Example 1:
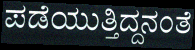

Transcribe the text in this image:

ಪಡೆಯುತ್ತಿದ್ದನಂತೆ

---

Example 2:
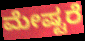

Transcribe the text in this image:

ಮೇಷ್ಟರೆ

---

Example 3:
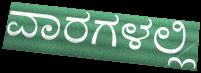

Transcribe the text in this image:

ವಾರಗಳಲ್ಲಿ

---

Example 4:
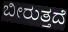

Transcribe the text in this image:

ಬೀರುತ್ತದೆ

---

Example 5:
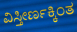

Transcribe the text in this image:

ವಿಸ್ತೀರ್ಣಕ್ಕಿಂತ